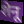
शेनू